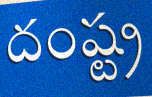
దంష్ట్ర